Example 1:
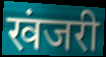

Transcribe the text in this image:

खंजरी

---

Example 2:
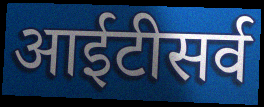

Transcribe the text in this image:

आईटीसर्व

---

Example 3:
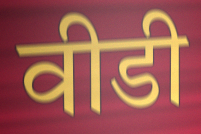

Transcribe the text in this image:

वीडी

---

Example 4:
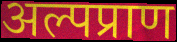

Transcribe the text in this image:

अल्पप्राण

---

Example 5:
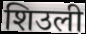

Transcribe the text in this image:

शिउली